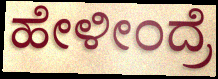
ಹೇಳೀಂದ್ರೆ